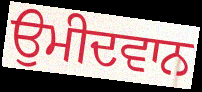
ਉਮੀਦਵਾਨ